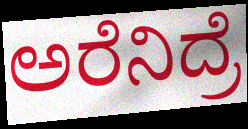
ಅರೆನಿದ್ರೆ